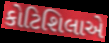
કોટિશિલાએ